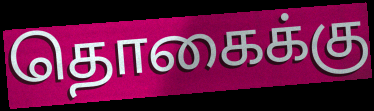
தொகைக்கு